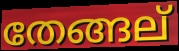
തേങ്ങല്